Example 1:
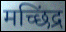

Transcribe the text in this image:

मच्छिंद्र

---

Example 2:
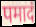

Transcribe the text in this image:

पमादं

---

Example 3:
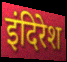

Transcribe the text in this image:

इंदिरेश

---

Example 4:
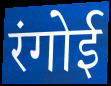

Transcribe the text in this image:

रंगोई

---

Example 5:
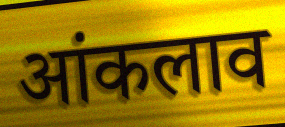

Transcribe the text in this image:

आंकलाव